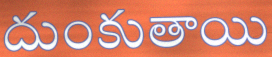
దుంకుతాయి